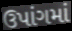
ઉપાંગમાં